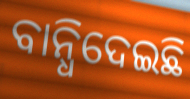
ବାନ୍ଧିଦେଇଛି